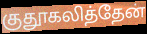
குதூகலித்தேன்